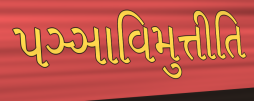
પઞ્ઞાવિમુત્તીતિ